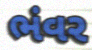
ભંવર